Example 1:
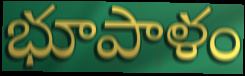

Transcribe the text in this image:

భూపాళం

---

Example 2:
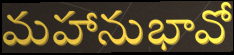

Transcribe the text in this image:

మహానుభావో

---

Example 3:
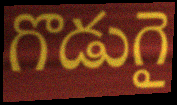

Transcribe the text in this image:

గొడుగై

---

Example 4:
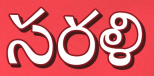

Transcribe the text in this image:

సరళి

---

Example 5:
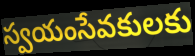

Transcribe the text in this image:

స్వయంసేవకులకు